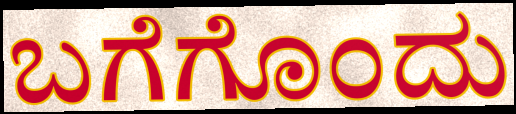
ಬಗೆಗೊಂದು